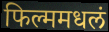
फिल्ममधलं